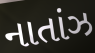
નાતાંઝ